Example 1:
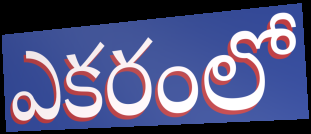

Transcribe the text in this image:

ఎకరంలో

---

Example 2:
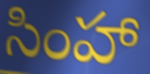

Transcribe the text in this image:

సింహా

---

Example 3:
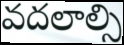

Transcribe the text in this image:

వదలాల్సి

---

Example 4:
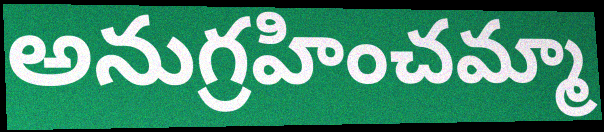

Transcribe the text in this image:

అనుగ్రహించమ్మా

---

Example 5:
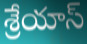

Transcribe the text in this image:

శ్రేయాస్